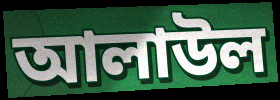
আলাউল